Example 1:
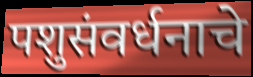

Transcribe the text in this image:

पशुसंवर्धनाचे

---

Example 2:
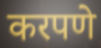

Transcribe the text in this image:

करपणे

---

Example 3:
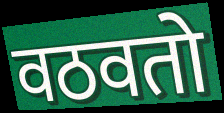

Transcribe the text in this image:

वठवतो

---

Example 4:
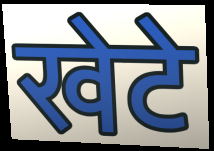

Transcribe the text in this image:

खेटे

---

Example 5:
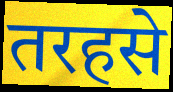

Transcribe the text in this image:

तरहसे